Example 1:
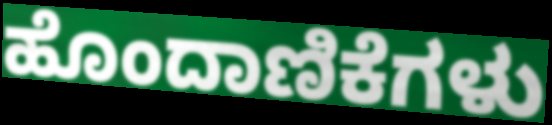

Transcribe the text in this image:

ಹೊಂದಾಣಿಕೆಗಳು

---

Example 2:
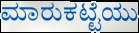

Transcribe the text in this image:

ಮಾರುಕಟ್ಟೆಯು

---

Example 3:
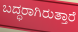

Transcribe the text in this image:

ಬದ್ಧರಾಗಿರುತ್ತಾರೆ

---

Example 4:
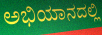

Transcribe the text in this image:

ಅಭಿಯಾನದಲ್ಲಿ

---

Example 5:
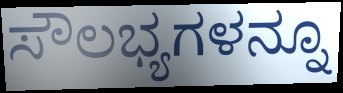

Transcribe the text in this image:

ಸೌಲಭ್ಯಗಳನ್ನೂ